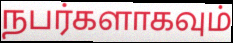
நபர்களாகவும்